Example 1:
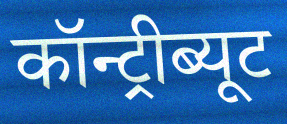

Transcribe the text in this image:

कॉन्ट्रीब्यूट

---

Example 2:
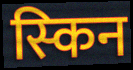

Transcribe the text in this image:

स्‍किन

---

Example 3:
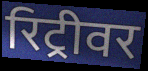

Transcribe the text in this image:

रिट्रीवर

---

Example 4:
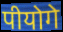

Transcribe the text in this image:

पीयोगे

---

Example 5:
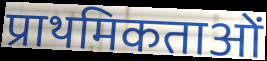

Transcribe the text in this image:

प्राथमिकताओं